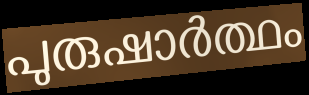
പുരുഷാർത്ഥം